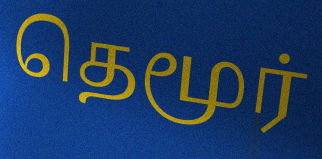
தெமூர்